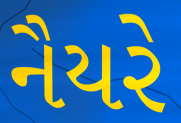
નૈયરે